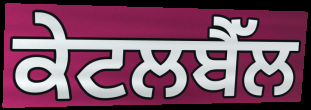
ਕੇਟਲਬੈੱਲ